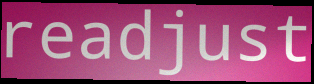
readjust